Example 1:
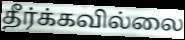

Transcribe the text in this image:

தீர்க்கவில்லை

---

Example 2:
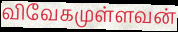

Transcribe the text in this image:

விவேகமுள்ளவன்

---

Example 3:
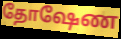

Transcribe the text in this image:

தோஷேண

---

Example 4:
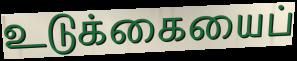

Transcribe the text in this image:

உடுக்கையைப்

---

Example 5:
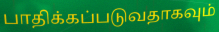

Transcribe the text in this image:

பாதிக்கப்படுவதாகவும்